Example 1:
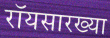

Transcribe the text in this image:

रॉयसारख्या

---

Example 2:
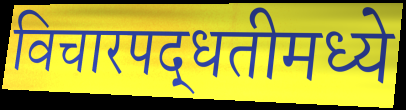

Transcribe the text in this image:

विचारपद्धतीमध्ये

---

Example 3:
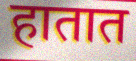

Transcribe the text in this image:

हातात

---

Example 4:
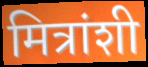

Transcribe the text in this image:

मित्रांशी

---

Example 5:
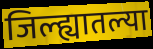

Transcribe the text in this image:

जिल्ह्यातल्या